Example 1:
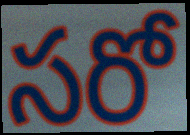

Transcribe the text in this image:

సరో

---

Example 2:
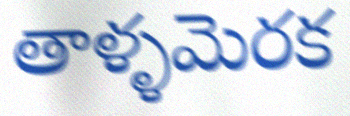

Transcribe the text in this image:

తాళ్ళమెరక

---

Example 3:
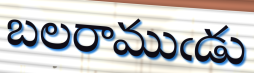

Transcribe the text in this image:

బలరాముఁడు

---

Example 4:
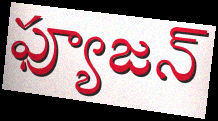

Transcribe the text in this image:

ఫ్యూజన్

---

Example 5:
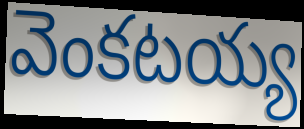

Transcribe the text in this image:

వెంకటయ్య